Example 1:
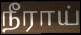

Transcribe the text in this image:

நீராய்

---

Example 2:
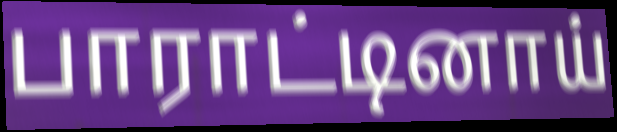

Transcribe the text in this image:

பாராட்டினாய்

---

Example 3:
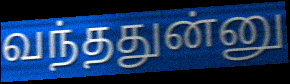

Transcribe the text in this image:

வந்ததுன்னு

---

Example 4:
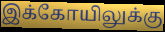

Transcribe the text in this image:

இக்கோயிலுக்கு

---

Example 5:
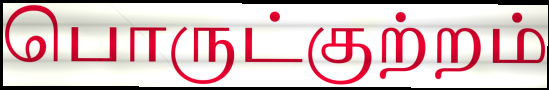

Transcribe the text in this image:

பொருட்குற்றம்